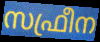
സഫ്രീന